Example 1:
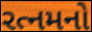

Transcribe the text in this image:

રત્નમનો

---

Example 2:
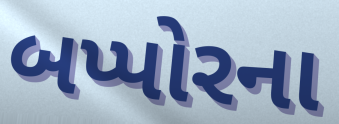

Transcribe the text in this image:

બપ્પોરના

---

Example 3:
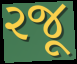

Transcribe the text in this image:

રજૂ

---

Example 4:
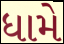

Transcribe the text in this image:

ધામે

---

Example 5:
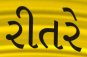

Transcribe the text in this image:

રીતરે